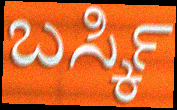
ಬರ್ಸ್ಕಿ